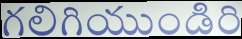
గలిగియుండిరి